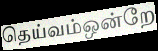
தெய்வம்ஒன்றே